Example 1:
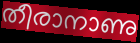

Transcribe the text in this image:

തീരാനാണു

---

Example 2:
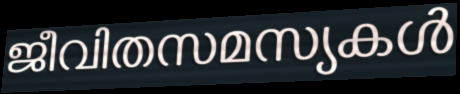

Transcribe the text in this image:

ജീവിതസമസ്യകൾ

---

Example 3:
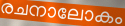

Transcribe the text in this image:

രചനാലോകം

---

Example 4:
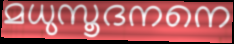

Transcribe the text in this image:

മധുസൂദനനെ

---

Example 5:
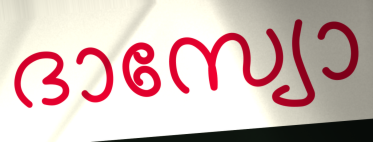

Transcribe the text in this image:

ദാസ്യോ